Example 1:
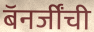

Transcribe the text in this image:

बॅनर्जींची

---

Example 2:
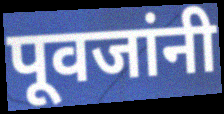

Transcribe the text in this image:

पूवजांनी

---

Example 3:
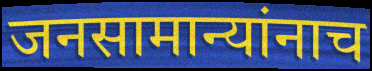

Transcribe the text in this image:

जनसामान्यांनाच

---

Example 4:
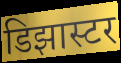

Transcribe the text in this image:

डिझास्टर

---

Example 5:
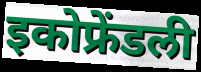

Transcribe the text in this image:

इकोफ्रेंडली